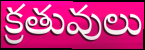
క్రతువులు